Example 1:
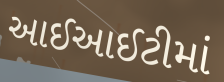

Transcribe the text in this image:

આઈઆઈટીમાં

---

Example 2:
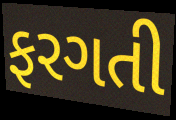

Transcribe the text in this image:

ફરગતી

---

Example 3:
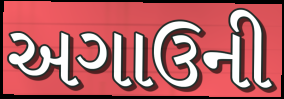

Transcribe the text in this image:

અગાઉની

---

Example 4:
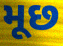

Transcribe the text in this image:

મૂછ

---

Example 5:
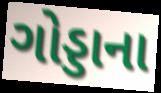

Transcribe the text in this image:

ગોડ્ડાના